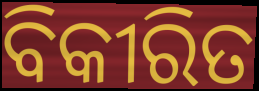
ବିକୀରିତ